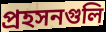
প্রহসনগুলি